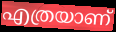
എത്രയാണ്